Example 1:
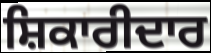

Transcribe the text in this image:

ਸ਼ਿਕਾਰੀਦਾਰ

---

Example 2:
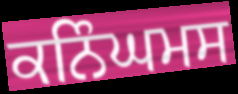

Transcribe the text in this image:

ਕਨਿੰਘਮਸ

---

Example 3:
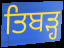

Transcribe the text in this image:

ਤਿਬੜ੍ਹ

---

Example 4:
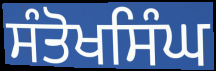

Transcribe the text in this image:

ਸੰਤੋਖਸਿੰਘ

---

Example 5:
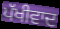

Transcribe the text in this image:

ਪੱਖੀਵਾਦ